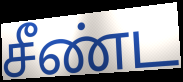
சீண்ட